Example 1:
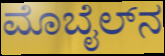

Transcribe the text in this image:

ಮೊಬೈಲ್‌ನ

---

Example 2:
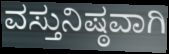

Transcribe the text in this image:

ವಸ್ತುನಿಷ್ಠವಾಗಿ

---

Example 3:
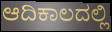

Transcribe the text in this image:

ಆದಿಕಾಲದಲ್ಲಿ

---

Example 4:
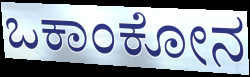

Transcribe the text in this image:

ಒಕಾಂಕೋನ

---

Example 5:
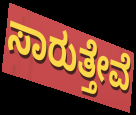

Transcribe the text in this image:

ಸಾರುತ್ತೇವೆ